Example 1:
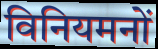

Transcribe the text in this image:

विनियमनों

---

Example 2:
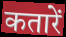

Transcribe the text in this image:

कतारें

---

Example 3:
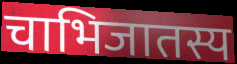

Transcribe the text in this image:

चाभिजातस्य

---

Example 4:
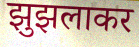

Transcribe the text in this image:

झुझलाकर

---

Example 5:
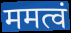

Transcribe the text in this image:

ममत्वं